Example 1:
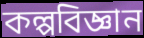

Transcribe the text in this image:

কল্পবিজ্ঞান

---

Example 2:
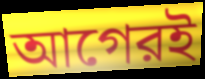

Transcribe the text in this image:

আগেরই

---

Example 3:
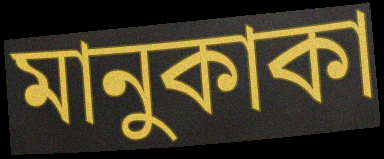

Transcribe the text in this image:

মানুকাকা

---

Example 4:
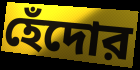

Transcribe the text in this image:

হেঁদোর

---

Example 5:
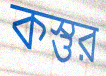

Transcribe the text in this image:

কস্তুর